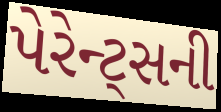
પેરેન્ટ્સની